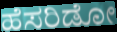
ಹೆಸರಿಡೋ